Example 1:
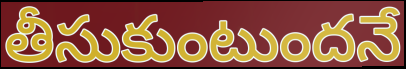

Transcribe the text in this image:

తీసుకుంటుందనే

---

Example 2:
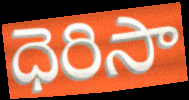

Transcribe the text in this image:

ధెరిసా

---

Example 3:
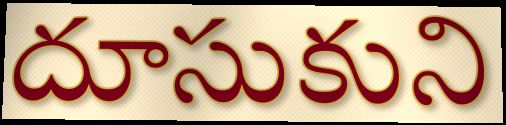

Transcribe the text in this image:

దూసుకుని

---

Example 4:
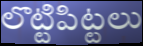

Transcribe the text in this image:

లొట్టిపిట్టలు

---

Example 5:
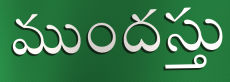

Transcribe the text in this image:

ముందస్తు